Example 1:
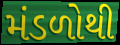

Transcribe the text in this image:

મંડળોથી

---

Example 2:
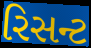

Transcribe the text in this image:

રિસન્ટ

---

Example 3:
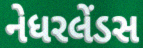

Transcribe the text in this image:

નેધરલેંડસ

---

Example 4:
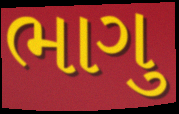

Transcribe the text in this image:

ભાગુ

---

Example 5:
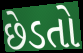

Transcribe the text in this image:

છેડતો